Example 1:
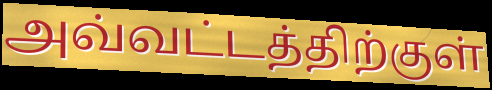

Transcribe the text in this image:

அவ்வட்டத்திற்குள்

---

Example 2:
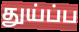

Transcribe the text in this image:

துய்ப்ப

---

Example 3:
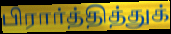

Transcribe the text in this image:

பிரார்த்தித்துக்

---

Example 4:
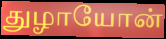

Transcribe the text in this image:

துழாயோன்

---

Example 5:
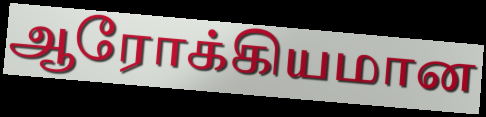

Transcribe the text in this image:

ஆரோக்கியமான